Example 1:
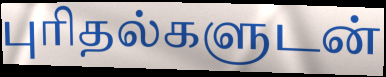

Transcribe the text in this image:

புரிதல்களுடன்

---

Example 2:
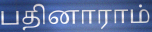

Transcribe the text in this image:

பதினாராம்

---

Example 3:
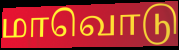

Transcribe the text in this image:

மாவொடு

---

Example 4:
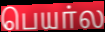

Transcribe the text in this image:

பெயர்ல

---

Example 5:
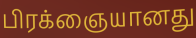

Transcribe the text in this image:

பிரக்ஞையானது